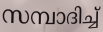
സമ്പാദിച്ച്